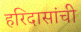
हरिदासांची